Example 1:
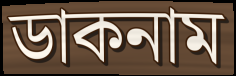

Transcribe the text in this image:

ডাকনাম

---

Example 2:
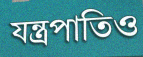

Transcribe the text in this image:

যন্ত্রপাতিও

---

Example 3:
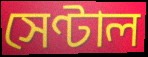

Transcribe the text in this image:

সেণ্টাল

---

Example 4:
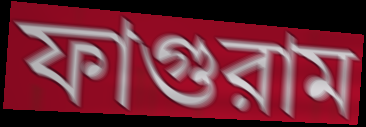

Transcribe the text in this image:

ফাগুরাম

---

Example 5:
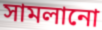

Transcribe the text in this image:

সামলানো